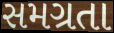
સમગ્રતા